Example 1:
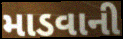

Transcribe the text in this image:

માડવાની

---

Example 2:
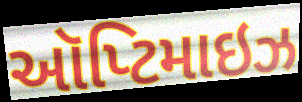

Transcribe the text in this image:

ઑપ્ટિમાઇઝ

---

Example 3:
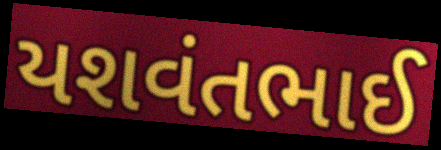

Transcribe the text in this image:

યશવંતભાઈ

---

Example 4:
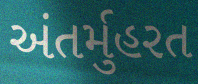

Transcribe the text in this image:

અંતર્મુહરત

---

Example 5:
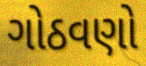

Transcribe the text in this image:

ગોઠવણો